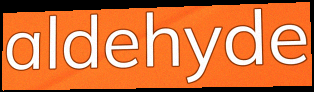
aldehyde